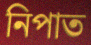
নিপাত